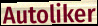
Autoliker